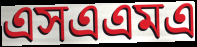
এসএএমএ